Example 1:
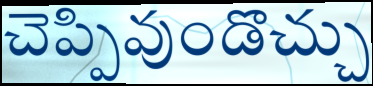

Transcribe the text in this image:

చెప్పివుండొచ్చు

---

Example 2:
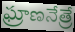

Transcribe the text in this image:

ఘ్రాణనేత్రే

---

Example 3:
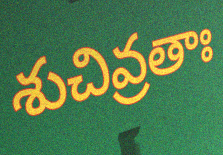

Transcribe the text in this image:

శుచివ్రతాః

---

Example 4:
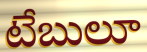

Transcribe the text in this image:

టేబులూ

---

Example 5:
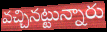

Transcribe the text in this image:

వచ్చినట్టున్నారు